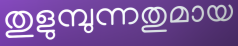
തുളുമ്പുന്നതുമായ